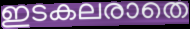
ഇടകലരാതെ